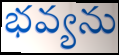
భవ్యను